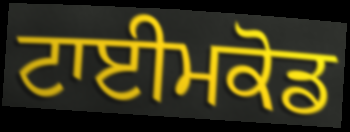
ਟਾਈਮਕੋਡ